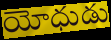
యోధుడు